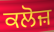
ਕਲੋਜ਼